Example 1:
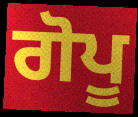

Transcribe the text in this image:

ਗੋਪੂ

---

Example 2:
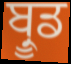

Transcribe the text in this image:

ਬ੍ਰੂਡ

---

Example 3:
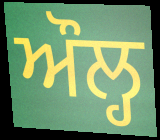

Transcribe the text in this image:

ਔਲ੍ਹ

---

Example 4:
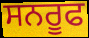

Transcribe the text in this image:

ਸਨਰੂਫ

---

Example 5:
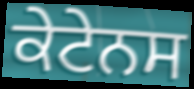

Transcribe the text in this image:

ਕੇਟੇਨਸ